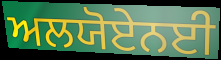
ਅਲਯੋਏਨਈ